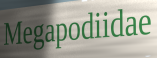
Megapodiidae